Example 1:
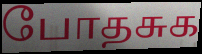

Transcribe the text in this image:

போதசுக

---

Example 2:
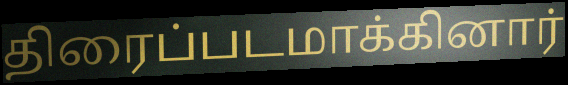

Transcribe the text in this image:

திரைப்படமாக்கினார்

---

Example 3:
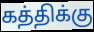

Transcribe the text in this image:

கத்திக்கு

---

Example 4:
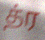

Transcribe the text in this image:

த்ர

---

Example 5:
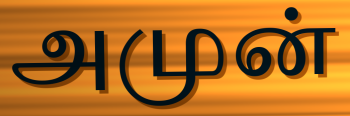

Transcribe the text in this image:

அமுன்